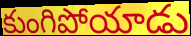
కుంగిపోయాడు